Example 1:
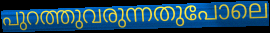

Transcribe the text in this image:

പുറത്തുവരുന്നതുപോലെ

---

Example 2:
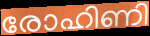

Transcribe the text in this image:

രോഹിണി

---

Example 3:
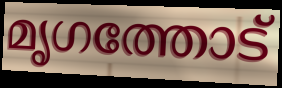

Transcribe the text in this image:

മൃഗത്തോട്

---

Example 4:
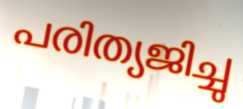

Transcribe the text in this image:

പരിത്യജിച്ചു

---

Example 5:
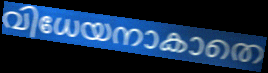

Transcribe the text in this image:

വിധേയനാകാതെ